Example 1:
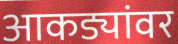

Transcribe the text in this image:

आकड्यांवर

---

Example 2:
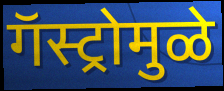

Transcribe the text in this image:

गॅस्ट्रोमुळे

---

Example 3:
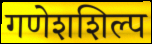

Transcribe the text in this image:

गणेशशिल्प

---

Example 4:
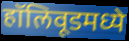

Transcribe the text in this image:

हॉलिवूडमध्ये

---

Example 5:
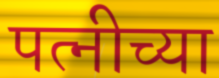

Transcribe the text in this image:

पत्नीच्या